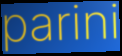
parini